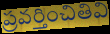
ప్రవర్తించితివి